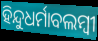
ହିନ୍ଦୁଧର୍ମାବଲମ୍ବୀ